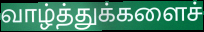
வாழ்த்துக்களைச்